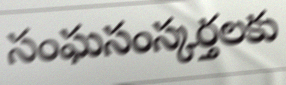
సంఘసంస్కర్తలకు